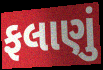
ફલાણું